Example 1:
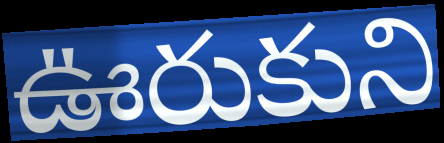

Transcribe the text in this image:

ఊరుకుని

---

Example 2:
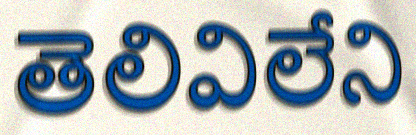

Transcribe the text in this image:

తెలివిలేని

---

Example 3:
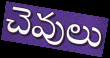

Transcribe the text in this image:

చెవులు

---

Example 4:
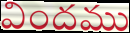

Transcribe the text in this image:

విందము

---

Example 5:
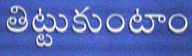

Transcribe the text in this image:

తిట్టుకుంటాం